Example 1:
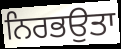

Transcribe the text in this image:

ਨਿਰਭਉਤਾ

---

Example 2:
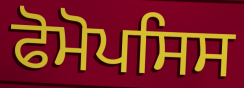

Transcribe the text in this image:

ਫੋਮੋਪਸਿਸ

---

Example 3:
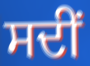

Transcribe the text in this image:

ਸਦੀਂ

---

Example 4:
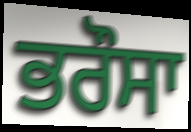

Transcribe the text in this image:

ਭਰੌਸਾ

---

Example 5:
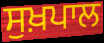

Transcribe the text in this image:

ਸੁਖ਼ਪਾਲ